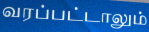
வரப்பட்டாலும்